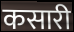
कसारी